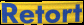
Retort